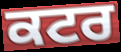
ਕਟਰ